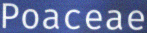
Poaceae